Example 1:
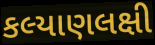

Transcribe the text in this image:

કલ્યાણલક્ષી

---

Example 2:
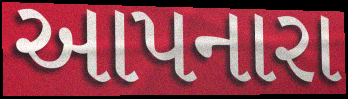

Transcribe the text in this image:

આપનારા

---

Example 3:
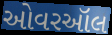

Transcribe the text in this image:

ઓવરઑલ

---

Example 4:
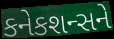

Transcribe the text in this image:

કનેકશન્સને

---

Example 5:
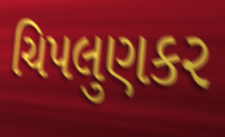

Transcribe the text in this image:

ચિપલુણકર